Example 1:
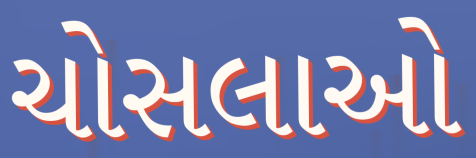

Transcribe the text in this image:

ચોસલાઓ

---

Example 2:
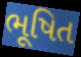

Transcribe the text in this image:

ભૂષિત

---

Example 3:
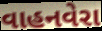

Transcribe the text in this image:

વાહનવેરા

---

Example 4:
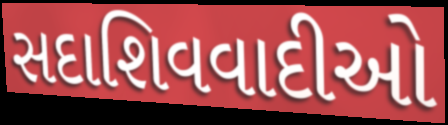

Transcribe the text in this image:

સદાશિવવાદીઓ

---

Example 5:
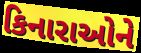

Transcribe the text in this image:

કિનારાઓને